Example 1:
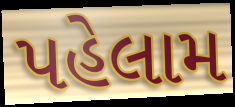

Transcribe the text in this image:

પહેલામ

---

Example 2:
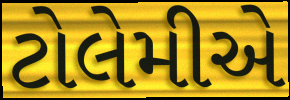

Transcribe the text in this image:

ટોલેમીએ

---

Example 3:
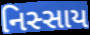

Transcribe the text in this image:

નિસ્સાય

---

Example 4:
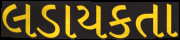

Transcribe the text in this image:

લડાયકતા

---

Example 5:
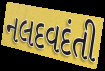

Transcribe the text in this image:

નલદવદંતી